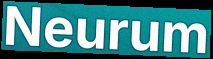
Neurum